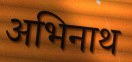
अभिनाथ